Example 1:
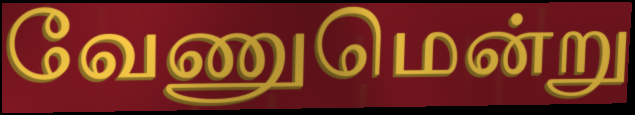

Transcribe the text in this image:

வேணுமென்று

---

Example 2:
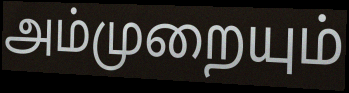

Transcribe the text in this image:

அம்முறையும்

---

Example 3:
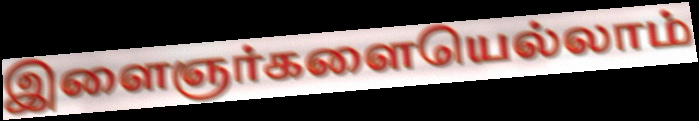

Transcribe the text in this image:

இளைஞர்களையெல்லாம்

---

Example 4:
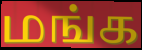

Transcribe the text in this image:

மங்க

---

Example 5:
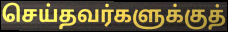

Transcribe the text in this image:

செய்தவர்களுக்குத்